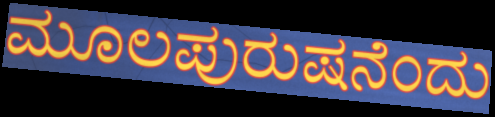
ಮೂಲಪುರುಷನೆಂದು